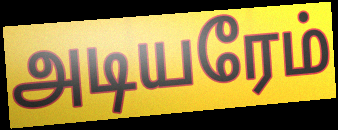
அடியரேம்